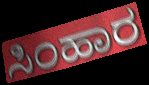
ಸಿಂಹಾರ